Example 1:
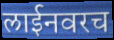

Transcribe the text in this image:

लाईनवरच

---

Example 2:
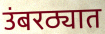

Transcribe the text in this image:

उंबरठ्यात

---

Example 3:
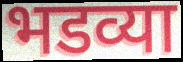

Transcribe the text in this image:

भडव्या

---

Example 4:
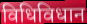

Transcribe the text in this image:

विधिविधान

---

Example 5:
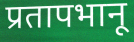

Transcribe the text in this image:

प्रतापभानू